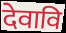
देवावि